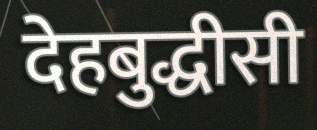
देहबुद्धीसी